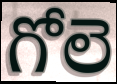
గోలె